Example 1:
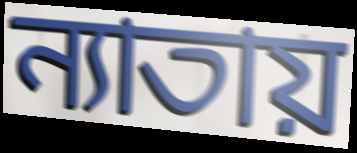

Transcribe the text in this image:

ন্যাতায়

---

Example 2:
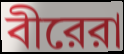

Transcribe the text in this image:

বীরেরা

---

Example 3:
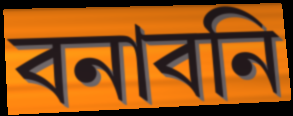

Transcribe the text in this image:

বনাবনি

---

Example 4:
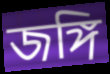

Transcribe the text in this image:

জঙ্গি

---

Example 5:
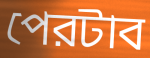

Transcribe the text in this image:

পেরটাব